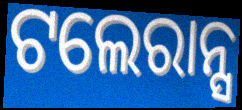
ଟଲେରାନ୍ସ